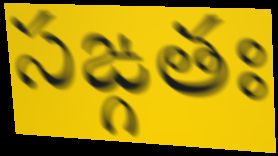
సఙ్గతః